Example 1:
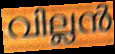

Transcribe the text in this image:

വില്ലൻ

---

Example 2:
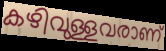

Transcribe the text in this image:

കഴിവുള്ളവരാണ്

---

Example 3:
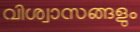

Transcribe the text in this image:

വിശ്വാസങ്ങളും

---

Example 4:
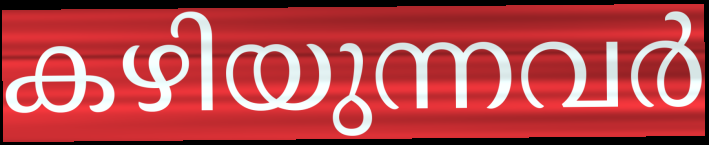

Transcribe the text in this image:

കഴിയുന്നവർ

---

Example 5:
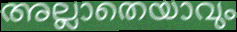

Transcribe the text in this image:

അല്ലാതെയാവും